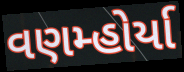
વણમ્હોર્યા